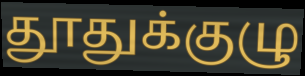
தூதுக்குழு